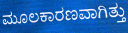
ಮೂಲಕಾರಣವಾಗಿತ್ತು